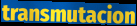
transmutacion